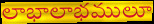
లాభాలాభములూ